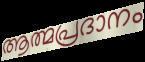
ആത്മപ്രദാനം